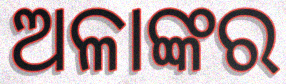
ଅଳାଙ୍କର